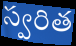
స్వరిత